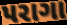
પરાગા